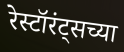
रेस्टॉरंट्सच्या